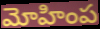
మోహింప